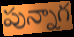
పున్నాగ